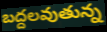
బద్దలవుతున్న